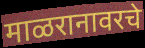
माळरानावरचे